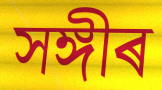
সঙ্গীৰ